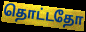
தொட்டதோ